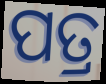
ପତ୍ର